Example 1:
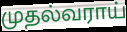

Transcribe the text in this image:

முதல்வராய்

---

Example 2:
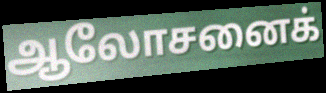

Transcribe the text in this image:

ஆலோசனைக்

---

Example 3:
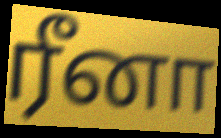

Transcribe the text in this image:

ரீனா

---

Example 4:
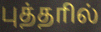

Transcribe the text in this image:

புத்தரில்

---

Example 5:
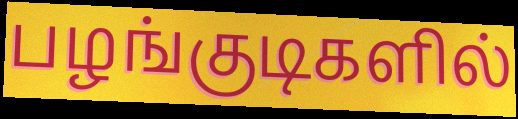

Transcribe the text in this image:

பழங்குடிகளில்